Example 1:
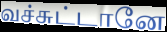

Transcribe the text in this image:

வச்சுட்டானே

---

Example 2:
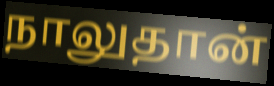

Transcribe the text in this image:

நாலுதான்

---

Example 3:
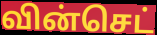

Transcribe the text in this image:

வின்செட்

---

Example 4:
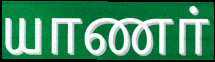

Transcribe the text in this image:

யாணர்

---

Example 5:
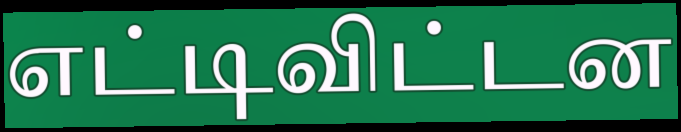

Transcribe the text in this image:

எட்டிவிட்டன